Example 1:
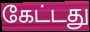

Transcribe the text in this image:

கேட்டது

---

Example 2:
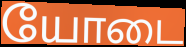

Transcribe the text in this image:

யோடை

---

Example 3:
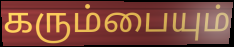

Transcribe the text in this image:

கரும்பையும்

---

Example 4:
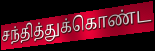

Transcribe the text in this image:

சந்தித்துக்கொண்ட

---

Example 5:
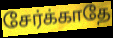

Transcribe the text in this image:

சேர்க்காதே